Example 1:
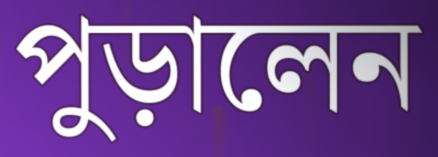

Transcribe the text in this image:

পুড়ালেন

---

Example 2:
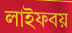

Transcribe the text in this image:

লাইফবয়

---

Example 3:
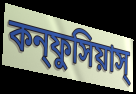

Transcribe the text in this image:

কন্ফুসিয়াস্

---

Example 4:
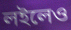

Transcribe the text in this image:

লইলেও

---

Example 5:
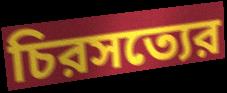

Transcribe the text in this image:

চিরসত্যের